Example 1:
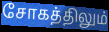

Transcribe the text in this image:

சோகத்திலும்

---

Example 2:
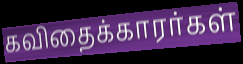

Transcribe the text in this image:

கவிதைக்காரர்கள்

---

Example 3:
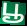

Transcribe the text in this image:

பூ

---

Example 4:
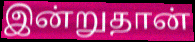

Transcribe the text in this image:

இன்றுதான்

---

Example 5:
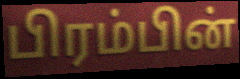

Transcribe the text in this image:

பிரம்பின்